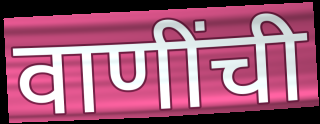
वाणींची